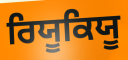
ਰਿਯੂਕਿਯੂ